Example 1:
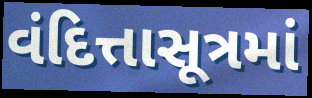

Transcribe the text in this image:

વંદિત્તાસૂત્રમાં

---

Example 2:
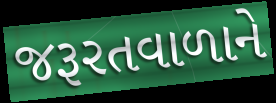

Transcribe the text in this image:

જરૂરતવાળાને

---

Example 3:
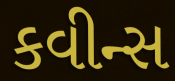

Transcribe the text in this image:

કવીન્સ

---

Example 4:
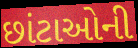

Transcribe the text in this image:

છાંટાઓની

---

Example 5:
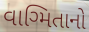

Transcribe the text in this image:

વાગ્મિતાનો